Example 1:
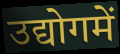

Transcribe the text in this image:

उद्योगमें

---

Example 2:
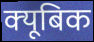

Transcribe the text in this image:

क्‍यूबिक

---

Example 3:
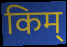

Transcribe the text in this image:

किम्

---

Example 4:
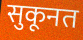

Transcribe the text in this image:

सुकूनत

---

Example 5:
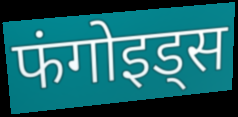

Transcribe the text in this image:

फंगोइड्स